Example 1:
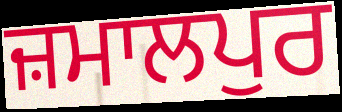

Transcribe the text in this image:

ਜ਼ਮਾਲਪੁਰ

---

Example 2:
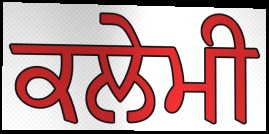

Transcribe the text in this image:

ਕਲੇਮੀ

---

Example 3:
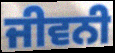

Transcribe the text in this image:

ਜੀਵਨੀ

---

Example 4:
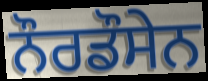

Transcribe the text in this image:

ਨੌਰਡੌਸੇਨ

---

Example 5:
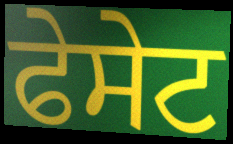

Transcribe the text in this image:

ਫੇਸੇਟ